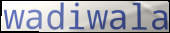
wadiwala